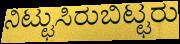
ನಿಟ್ಟುಸಿರುಬಿಟ್ಟರು